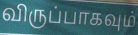
விருப்பாகவும்